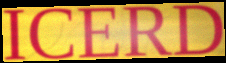
ICERD